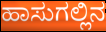
ಹಾಸುಗಲ್ಲಿನ